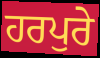
ਹਰਪੁਰੇ